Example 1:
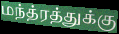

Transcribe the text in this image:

மந்த்ரத்துக்கு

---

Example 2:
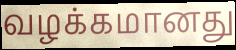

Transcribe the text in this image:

வழக்கமானது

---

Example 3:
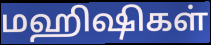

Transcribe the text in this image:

மஹிஷிகள்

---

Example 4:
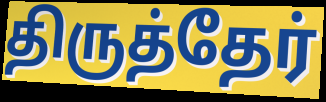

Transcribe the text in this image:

திருத்தேர்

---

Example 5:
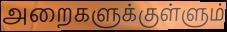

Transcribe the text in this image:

அறைகளுக்குள்ளும்